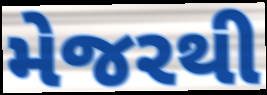
મેજરથી